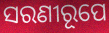
ସରଣୀରୂପେ